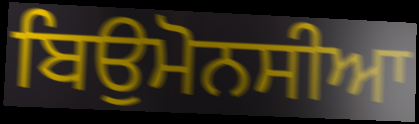
ਬਿਉਮੋਨਸੀਆ